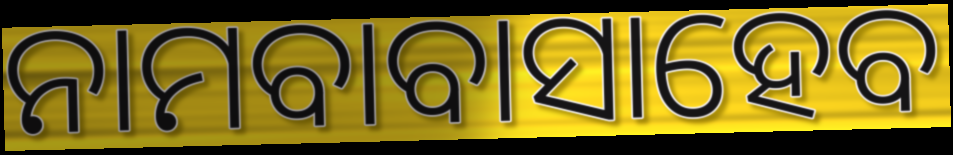
ନାମବାବାସାହେବ